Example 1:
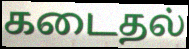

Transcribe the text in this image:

கடைதல்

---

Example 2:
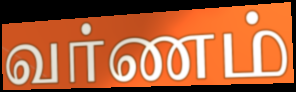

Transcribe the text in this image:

வர்ணம்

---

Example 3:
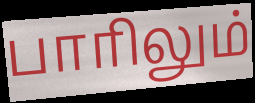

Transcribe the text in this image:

பாரிலும்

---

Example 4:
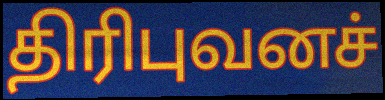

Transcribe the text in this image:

திரிபுவனச்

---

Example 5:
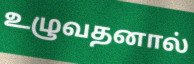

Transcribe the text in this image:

உழுவதனால்